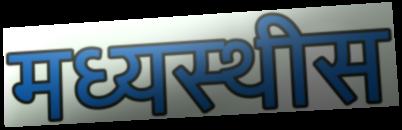
मध्यस्थीस